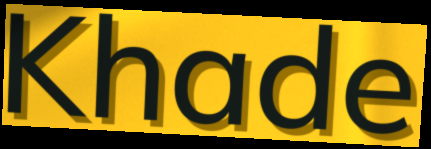
Khade